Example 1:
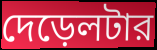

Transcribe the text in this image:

দেড়েলটার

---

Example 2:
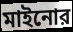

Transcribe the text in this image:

মাইনোর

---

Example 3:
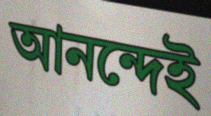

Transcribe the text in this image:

আনন্দেই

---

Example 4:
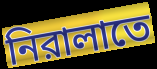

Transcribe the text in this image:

নিরালাতে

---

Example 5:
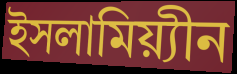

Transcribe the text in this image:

ইসলামিয়্যীন